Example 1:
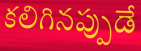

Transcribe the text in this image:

కలిగినప్పుడే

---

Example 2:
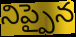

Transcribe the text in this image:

నిప్పైన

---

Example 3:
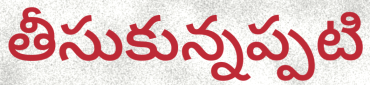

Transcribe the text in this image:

తీసుకున్నప్పటి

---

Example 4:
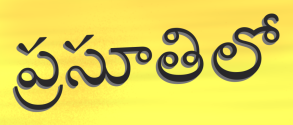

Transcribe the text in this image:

ప్రసూతిలో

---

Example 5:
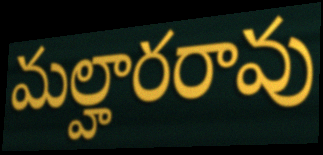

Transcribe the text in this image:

మల్హారరావు